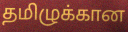
தமிழுக்கான